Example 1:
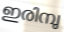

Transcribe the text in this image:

ഇരിമ്പു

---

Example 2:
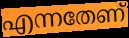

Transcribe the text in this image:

എന്നതേണ്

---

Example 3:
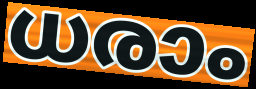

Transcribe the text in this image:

ധരാം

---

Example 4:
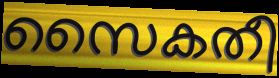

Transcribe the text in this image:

സൈകതീ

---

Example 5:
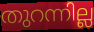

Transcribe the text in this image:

തുറന്നില്ല